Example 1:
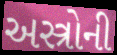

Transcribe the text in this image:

અસ્ત્રોની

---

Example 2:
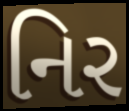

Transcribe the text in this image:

નિર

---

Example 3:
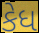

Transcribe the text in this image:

કેધ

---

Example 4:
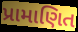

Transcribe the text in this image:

પ્રામાણિત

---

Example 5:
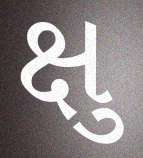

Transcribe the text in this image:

ક્ષુ